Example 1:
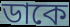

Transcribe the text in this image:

ডাকে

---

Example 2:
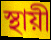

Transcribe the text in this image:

স্থায়ী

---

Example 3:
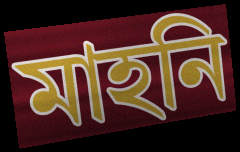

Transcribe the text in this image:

মাহনি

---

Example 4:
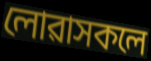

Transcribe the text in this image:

লোৱাসকলে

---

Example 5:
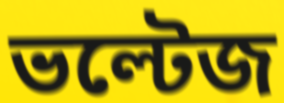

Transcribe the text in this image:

ভল্টেজ